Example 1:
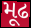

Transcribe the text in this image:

મૂઢ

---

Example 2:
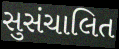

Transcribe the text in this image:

સુસંચાલિત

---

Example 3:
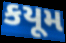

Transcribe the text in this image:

કયૂમ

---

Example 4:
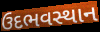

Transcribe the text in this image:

ઉદભવસ્થાન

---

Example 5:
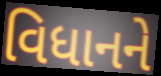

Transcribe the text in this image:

વિધાનને